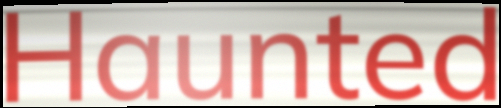
Haunted